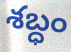
శబ్ధం